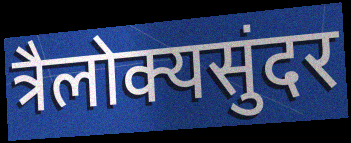
त्रैलोक्यसुंदर